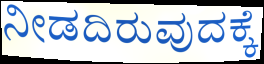
ನೀಡದಿರುವುದಕ್ಕೆ